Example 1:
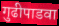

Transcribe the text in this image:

गुढीपाडवा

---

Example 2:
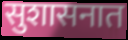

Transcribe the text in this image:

सुशासनात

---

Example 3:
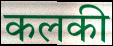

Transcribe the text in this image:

कलकी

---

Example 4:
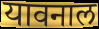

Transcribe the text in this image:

यावनाल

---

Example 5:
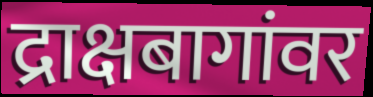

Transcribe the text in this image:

द्राक्षबागांवर